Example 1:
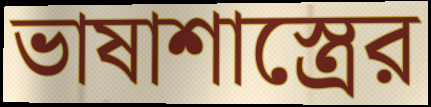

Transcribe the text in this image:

ভাষাশাস্ত্রের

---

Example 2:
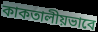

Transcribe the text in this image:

কাকতালীয়ভাবে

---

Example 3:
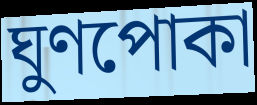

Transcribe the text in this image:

ঘুণপোকা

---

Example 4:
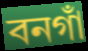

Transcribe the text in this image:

বনগাঁ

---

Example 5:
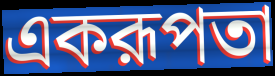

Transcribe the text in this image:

একরূপতা